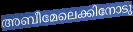
അബീമേലെക്കിനോടു